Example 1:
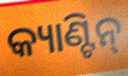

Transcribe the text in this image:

କ୍ୟାଣ୍ଟିନ୍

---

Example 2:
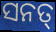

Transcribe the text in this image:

ସନତ୍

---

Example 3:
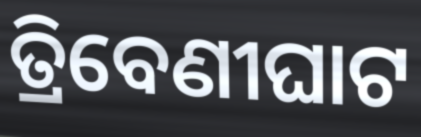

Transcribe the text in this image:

ତ୍ରିବେଣୀଘାଟ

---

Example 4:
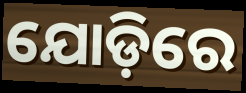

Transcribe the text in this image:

ଯୋଡ଼ିରେ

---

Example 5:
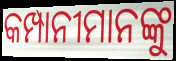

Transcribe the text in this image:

କମ୍ପାନୀମାନଙ୍କୁ